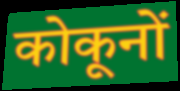
कोकूनों